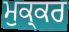
ਮੁਕ੍ਕਰ